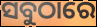
ସବୁଠାରେ